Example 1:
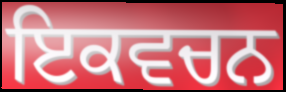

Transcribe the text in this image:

ਇਕਵਚਨ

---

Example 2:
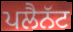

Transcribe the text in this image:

ਪਲੈਨੱਟ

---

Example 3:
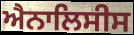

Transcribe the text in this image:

ਐਨਾਲਿਸੀਸ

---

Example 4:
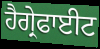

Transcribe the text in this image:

ਹੈਗ੍ਰੇਫਾਈਟ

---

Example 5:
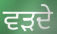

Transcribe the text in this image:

ਵੜਦੇ